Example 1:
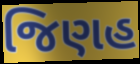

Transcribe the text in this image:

જિણહ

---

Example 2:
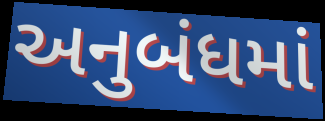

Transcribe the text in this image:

અનુબંધમાં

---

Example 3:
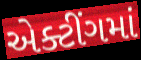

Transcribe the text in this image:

એક્ટીંગમાં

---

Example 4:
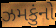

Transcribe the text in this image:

ઝમકુંનો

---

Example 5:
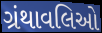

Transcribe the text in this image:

ગ્રંથાવલિઓ